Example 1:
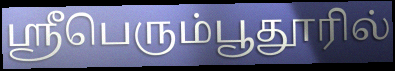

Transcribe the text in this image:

ஸ்ரீபெரும்பூதூரில்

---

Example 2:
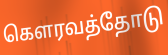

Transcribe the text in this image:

கௌரவத்தோடு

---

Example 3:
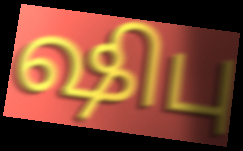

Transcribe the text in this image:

ஷிபு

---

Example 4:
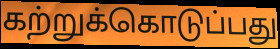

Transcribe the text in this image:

கற்றுக்கொடுப்பது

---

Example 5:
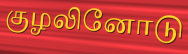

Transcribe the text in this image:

குழலினோடு